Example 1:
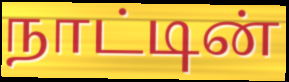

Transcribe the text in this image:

நாட்டின்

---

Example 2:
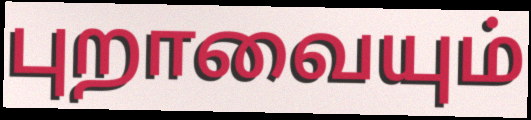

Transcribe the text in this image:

புறாவையும்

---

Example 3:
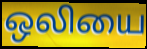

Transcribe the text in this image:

ஒலியை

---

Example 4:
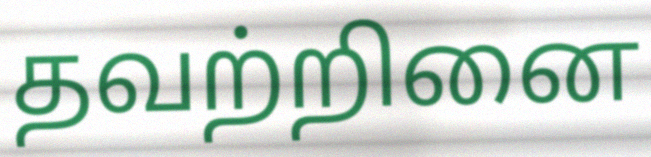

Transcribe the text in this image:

தவற்றினை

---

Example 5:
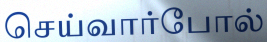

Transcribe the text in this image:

செய்வார்போல்